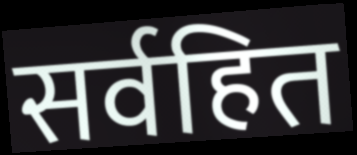
सर्वहित